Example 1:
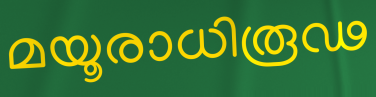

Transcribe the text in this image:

മയൂരാധിരൂഢ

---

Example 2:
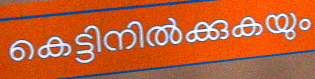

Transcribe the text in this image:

കെട്ടിനിൽക്കുകയും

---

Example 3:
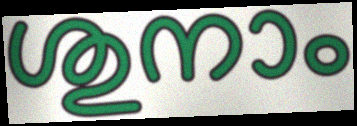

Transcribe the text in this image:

ശുനാം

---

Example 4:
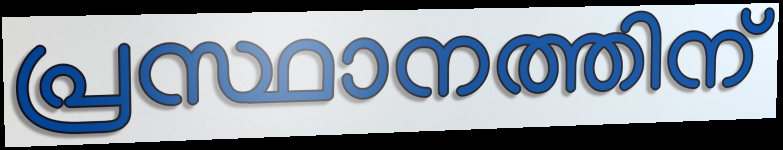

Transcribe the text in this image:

പ്രസ്ഥാനത്തിന്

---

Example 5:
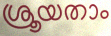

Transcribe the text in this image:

ശ്രൂയതാം